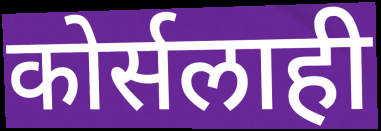
कोर्सलाही